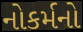
નોકર્મનો